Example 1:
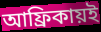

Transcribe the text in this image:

আফ্রিকায়ই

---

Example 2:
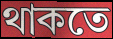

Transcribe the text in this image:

থাকতে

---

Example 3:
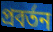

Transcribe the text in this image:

প্রবর্তন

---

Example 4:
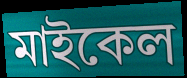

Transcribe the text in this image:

মাইকেল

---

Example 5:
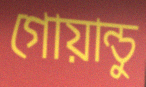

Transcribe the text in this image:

গোয়ান্ডু